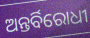
ଅନ୍ତର୍ବିରୋଧୀ